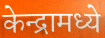
केन्द्रामध्ये